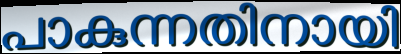
പാകുന്നതിനായി